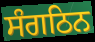
ਸੰਗਠਿਨ